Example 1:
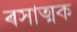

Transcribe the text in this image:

ৰসাত্মক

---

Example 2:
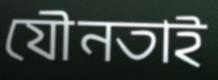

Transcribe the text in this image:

যৌনতাই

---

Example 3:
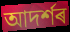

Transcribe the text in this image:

আদৰ্শৰ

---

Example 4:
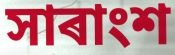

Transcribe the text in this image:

সাৰাংশ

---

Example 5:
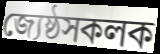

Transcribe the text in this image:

জ্যেষ্ঠসকলক